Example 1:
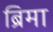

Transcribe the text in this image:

ब्रिमा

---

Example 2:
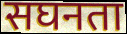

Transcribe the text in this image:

सघनता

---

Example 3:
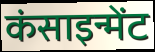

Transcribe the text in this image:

कंसाइन्मेंट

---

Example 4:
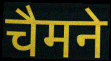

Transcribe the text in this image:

चैमने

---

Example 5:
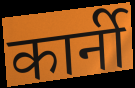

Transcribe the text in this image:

कार्नी